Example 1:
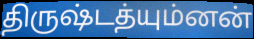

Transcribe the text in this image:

திருஷ்டத்யும்னன்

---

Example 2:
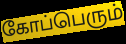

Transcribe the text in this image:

கோப்பெரும்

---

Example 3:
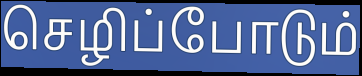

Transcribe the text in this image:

செழிப்போடும்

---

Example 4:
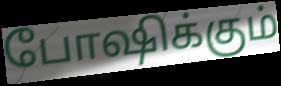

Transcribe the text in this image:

போஷிக்கும்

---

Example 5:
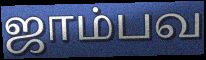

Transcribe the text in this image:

ஜாம்பவ